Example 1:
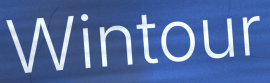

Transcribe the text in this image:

Wintour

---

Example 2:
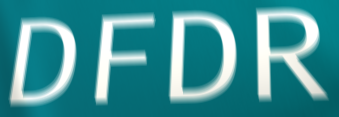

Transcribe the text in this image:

DFDR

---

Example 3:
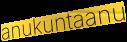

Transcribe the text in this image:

anukuntaanu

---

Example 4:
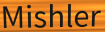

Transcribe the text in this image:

Mishler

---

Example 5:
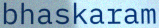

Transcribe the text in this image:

bhaskaram